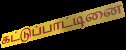
கட்டுப்பாட்டினை